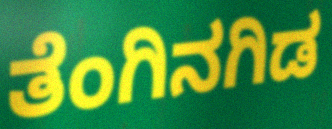
ತೆಂಗಿನಗಿಡ